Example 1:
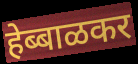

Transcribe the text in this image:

हेब्बाळकर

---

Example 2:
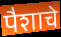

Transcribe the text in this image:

पैशाचे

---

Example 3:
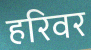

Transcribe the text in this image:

हरिवर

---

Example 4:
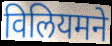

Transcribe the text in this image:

विलियमने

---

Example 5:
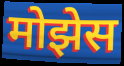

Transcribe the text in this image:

मोझेस